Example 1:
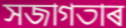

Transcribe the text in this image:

সজাগতাৰ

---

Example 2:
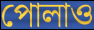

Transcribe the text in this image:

পোলাও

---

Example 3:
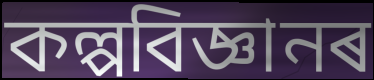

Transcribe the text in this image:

কল্পবিজ্ঞানৰ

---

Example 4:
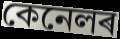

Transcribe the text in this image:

কেনেলৰ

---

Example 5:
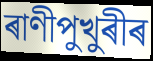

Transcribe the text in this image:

ৰাণীপুখুৰীৰ